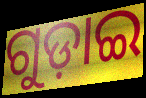
ଗୁଡ଼ାଇ